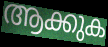
ആക്കുക